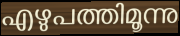
എഴുപത്തിമൂന്നു